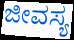
ಜೀವಸ್ಯ